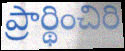
ప్రార్థించిరి